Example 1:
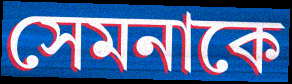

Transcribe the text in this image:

সেমনাকে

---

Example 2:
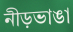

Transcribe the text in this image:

নীড়ভাঙা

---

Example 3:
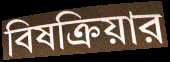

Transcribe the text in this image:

বিষক্রিয়ার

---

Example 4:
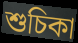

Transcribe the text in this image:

শুচিকা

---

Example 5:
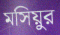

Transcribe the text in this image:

মসিয়ুর